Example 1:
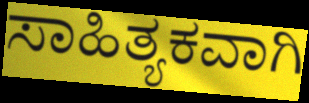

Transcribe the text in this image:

ಸಾಹಿತ್ಯಕವಾಗಿ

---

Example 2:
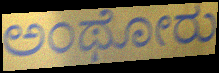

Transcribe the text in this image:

ಅಂಥೋರು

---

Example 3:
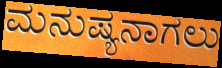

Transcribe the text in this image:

ಮನುಷ್ಯನಾಗಲು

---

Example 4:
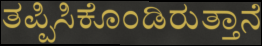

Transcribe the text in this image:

ತಪ್ಪಿಸಿಕೊಂಡಿರುತ್ತಾನೆ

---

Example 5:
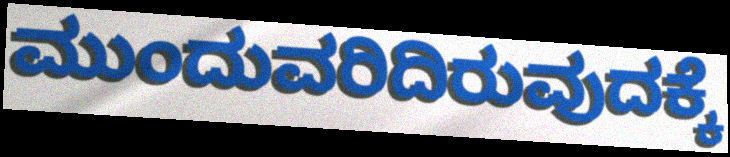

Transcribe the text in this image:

ಮುಂದುವರಿದಿರುವುದಕ್ಕೆ